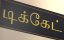
டிக்கேட்